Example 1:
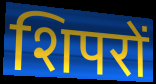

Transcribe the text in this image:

शिपरों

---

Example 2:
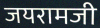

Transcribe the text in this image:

जयरामजी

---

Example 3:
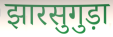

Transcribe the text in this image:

झारसुगुड़ा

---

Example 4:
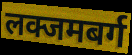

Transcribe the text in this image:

लक्जमबर्ग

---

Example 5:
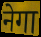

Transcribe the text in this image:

नेगा